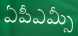
ఏపీఎమ్సీ